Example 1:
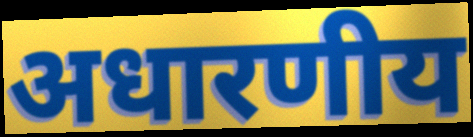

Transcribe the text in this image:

अधारणीय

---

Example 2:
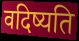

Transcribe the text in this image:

वदिष्यति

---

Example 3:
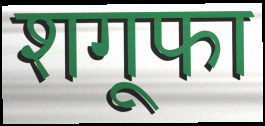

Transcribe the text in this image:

शगूफा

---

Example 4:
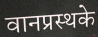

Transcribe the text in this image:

वानप्रस्थके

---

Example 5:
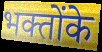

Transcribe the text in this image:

भक्तोंके